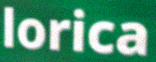
lorica